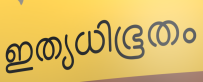
ഇത്യധിഭൂതം